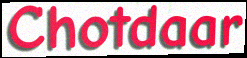
Chotdaar